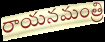
రాయనమంత్రి